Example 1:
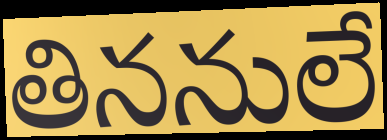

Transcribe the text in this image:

తిననులే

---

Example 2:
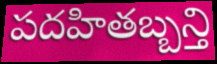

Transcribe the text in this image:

పదహితబ్బన్తి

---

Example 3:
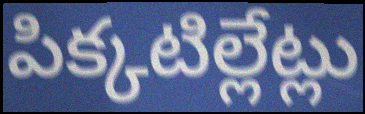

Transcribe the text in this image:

పిక్కటిల్లేట్లు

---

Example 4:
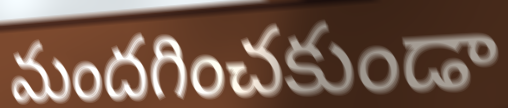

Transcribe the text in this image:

మందగించకుండా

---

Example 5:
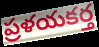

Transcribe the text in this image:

ప్రళయకర్త